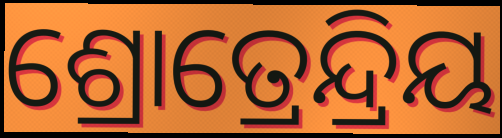
ଶ୍ରୋତ୍ରେନ୍ଦ୍ରିୟ